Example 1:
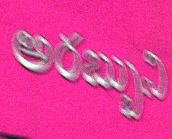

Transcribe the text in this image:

అరబ్బుని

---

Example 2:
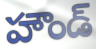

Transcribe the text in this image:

హౌండ్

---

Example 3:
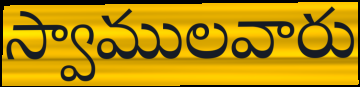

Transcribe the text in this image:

స్వాములవారు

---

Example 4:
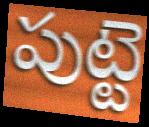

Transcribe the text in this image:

పుట్టె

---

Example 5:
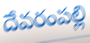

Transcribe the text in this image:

దేవరంపల్లి